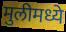
मुलीमध्ये